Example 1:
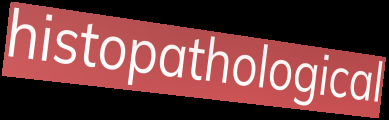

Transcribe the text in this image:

histopathological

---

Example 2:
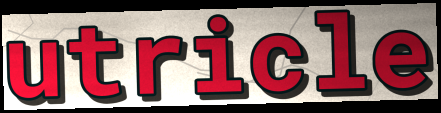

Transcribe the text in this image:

utricle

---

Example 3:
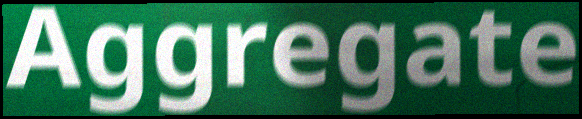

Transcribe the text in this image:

Aggregate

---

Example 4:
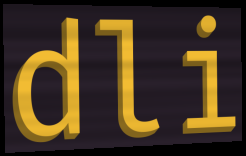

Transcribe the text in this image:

dli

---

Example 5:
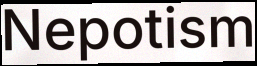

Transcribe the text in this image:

Nepotism